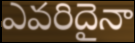
ఎవరిదైనా